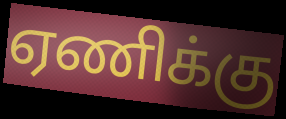
ஏணிக்கு